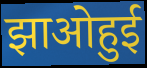
झाओहुई